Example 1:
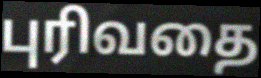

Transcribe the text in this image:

புரிவதை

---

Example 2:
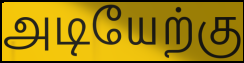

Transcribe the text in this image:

அடியேற்கு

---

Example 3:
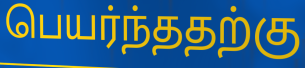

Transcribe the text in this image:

பெயர்ந்ததற்கு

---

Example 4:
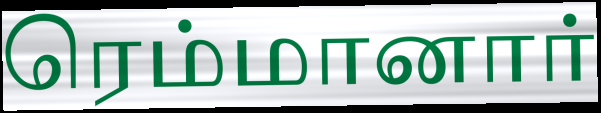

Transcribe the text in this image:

ரெம்மானார்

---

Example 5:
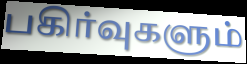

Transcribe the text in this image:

பகிர்வுகளும்